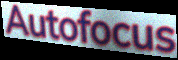
Autofocus